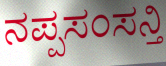
ನಪ್ಪಸಂಸನ್ತಿ